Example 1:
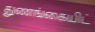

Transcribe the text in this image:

துணங்கையிட்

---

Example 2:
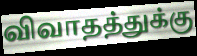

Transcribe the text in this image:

விவாதத்துக்கு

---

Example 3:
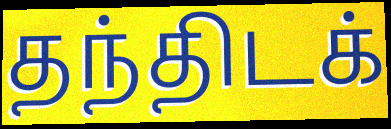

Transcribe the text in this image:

தந்திடக்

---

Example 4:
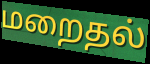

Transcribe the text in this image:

மறைதல்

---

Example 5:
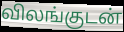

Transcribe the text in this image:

விலங்குடன்